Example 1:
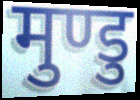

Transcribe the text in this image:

मुण्डु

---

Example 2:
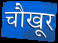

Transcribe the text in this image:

चौखूर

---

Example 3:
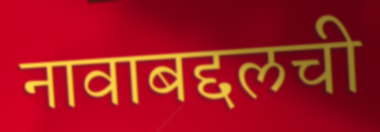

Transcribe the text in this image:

नावाबद्दलची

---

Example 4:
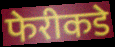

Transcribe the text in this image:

फेरीकडे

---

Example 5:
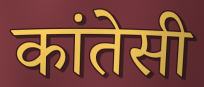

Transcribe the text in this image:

कांतेसी